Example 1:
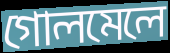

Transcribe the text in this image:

গোলমেলে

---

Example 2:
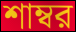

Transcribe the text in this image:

শাম্বর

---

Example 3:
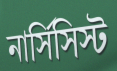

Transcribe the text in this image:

নার্সিসিস্ট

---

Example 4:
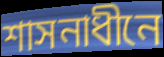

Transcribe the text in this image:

শাসনাধীনে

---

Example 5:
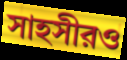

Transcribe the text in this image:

সাহসীরও